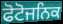
ਫੋਟੋਜਨਿਕ